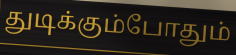
துடிக்கும்போதும்